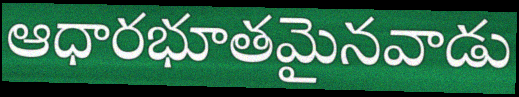
ఆధారభూతమైనవాడు